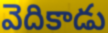
వెదికాడు